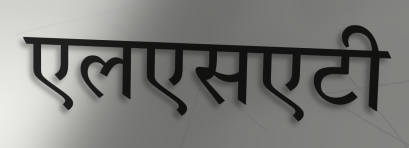
एलएसएटी